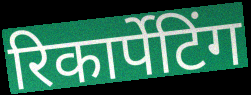
रिकार्पेटिंग